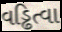
વડ્ઢિત્વા